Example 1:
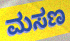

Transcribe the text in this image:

ಮಸಣ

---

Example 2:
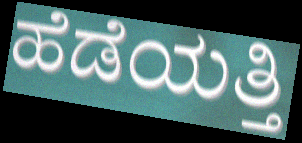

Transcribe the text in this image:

ಹೆಡೆಯತ್ತಿ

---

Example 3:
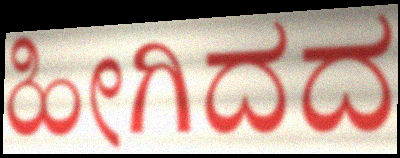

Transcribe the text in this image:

ಹೀಗಿದದ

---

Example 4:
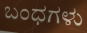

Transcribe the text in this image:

ಬಂಧಗಳು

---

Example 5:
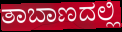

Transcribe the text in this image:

ತಾಬಾಣದಲ್ಲಿ